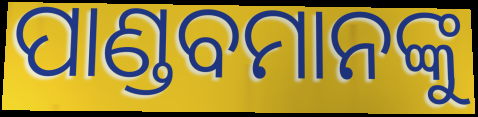
ପାଣ୍ଡବମାନଙ୍କୁ